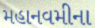
મહાનવમીના